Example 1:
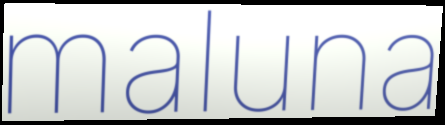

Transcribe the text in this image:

maluna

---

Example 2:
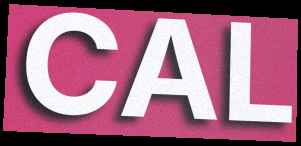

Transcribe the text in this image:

CAL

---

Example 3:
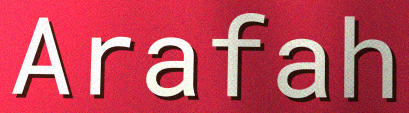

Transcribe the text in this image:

Arafah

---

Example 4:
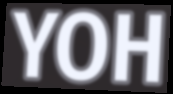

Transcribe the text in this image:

YOH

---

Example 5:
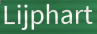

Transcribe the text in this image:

Lijphart